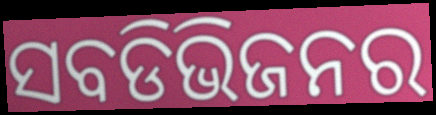
ସବଡିଭିଜନର